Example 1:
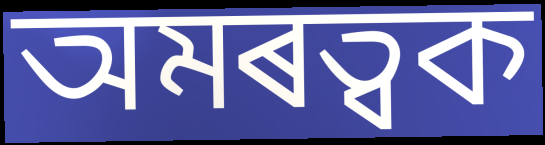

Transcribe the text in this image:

অমৰত্বক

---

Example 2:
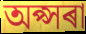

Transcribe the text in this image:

অপ্সৰা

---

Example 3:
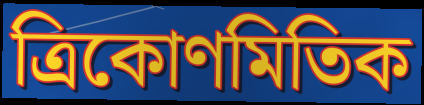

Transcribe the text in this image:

ত্ৰিকোণমিতিক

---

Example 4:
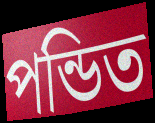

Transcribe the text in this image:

পন্ডিত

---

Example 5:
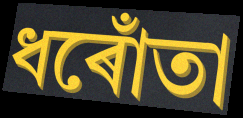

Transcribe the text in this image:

ধৰোঁতা